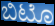
ಬಿಟೊ